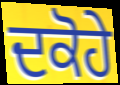
ਦਕੋਹੇ